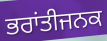
ਭਰਾਂਤੀਜਨਕ